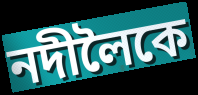
নদীলৈকে